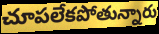
చూపలేకపోతున్నారు